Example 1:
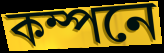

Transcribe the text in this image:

কম্পনে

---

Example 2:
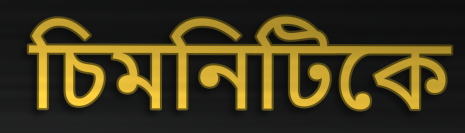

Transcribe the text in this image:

চিমনিটিকে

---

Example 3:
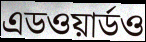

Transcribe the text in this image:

এডওয়ার্ডও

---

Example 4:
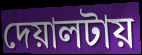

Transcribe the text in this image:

দেয়ালটায়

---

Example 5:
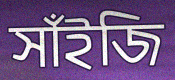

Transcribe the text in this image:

সাঁইজি